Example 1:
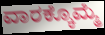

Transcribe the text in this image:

ವಾರಕ್ಕೊಮ್ಮೆ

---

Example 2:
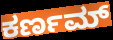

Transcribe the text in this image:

ಕರ್ಣಮ್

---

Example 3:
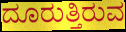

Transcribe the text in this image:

ದೂರುತ್ತಿರುವ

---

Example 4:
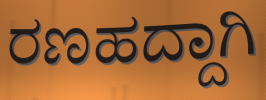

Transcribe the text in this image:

ರಣಹದ್ದಾಗಿ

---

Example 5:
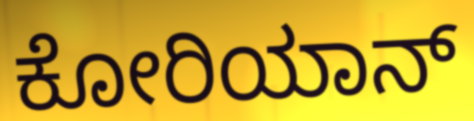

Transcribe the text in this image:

ಕೋರಿಯಾನ್